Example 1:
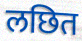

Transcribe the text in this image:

लछित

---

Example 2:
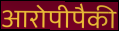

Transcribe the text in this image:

आरोपीपैकी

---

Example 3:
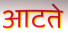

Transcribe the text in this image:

आटते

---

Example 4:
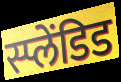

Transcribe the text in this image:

स्प्लेंडिड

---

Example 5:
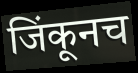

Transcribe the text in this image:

जिंकूनच